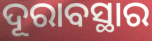
ଦୂରାବସ୍ଥାର